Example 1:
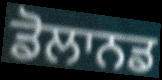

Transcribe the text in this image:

ਡੋਲਾਨਡ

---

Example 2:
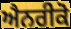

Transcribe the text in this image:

ਐਨਰੀਕੋ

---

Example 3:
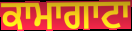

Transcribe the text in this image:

ਕਾਮਾਗਾਟਾ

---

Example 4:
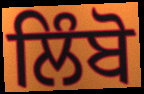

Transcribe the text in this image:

ਲਿੰਬੋ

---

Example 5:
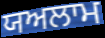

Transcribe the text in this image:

ਯਅਲਾਮ